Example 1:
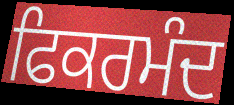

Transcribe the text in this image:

ਫਿਕਰਮੰਦ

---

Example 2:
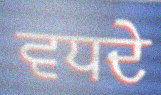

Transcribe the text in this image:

ਵਧਦੇ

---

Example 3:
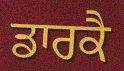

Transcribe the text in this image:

ਡਾਰਕੈ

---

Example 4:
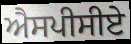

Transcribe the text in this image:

ਐਸਪੀਸੀਏ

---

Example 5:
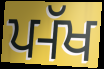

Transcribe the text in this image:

ਪ੍ਮੱਖ